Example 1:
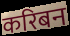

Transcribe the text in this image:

करिबन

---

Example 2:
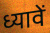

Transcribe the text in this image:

ध्यावें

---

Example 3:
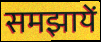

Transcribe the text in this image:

समझायें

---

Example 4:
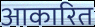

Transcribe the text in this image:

आकारित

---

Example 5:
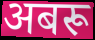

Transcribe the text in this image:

अबरू